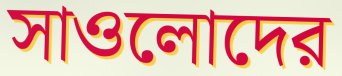
সাওলোদের